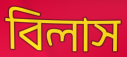
বিলাস